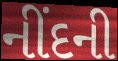
નીંદની